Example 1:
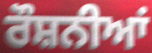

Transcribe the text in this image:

ਰੌਸ਼ਨੀਆਂ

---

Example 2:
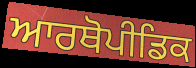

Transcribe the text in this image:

ਆਰਥੋਪੀਡਿਕ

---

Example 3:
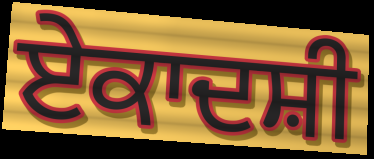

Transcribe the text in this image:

ਏਕਾਦਸ਼ੀ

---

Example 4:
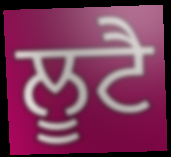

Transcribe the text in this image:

ਲੂਟੈ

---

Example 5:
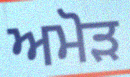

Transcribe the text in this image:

ਅਮੋੜ